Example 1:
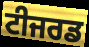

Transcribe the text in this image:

ਟੀਜਰਡ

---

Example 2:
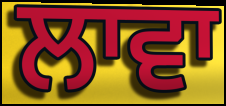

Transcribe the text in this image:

ਲਾਵਾ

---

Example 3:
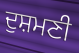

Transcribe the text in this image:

ਦੁਸ਼ਮਣੀ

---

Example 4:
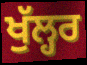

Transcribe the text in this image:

ਖੁੱਲ੍ਹਰ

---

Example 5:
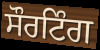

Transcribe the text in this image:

ਸੌਰਟਿੰਗ